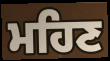
ਮਹਿਣ